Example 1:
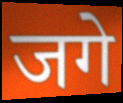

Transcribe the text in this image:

जगे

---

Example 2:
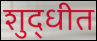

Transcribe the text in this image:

शुद्धीत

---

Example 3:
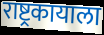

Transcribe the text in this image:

राष्ट्रकायाला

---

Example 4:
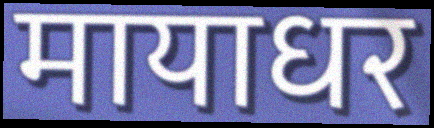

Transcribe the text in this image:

मायाधर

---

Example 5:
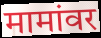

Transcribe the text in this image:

मामांवर